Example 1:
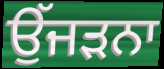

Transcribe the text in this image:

ਉੱਜੜਨਾ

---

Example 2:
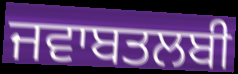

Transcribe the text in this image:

ਜਵਾਬਤਲਬੀ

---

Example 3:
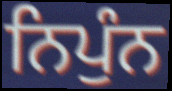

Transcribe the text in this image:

ਨਿਪੁੰਨ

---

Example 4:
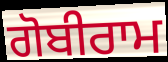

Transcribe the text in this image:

ਗੋਬੀਰਾਮ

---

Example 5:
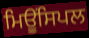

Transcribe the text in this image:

ਮਿਊਂਸਿਪਲ